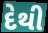
દેથી